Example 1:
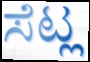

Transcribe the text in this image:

ಸೆಟ್ಲ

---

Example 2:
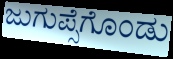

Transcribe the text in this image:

ಜುಗುಪ್ಸೆಗೊಂಡು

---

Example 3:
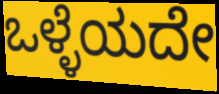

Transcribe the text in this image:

ಒಳ್ಳೆಯದೇ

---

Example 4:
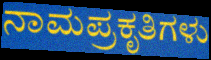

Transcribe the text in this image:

ನಾಮಪ್ರಕೃತಿಗಳು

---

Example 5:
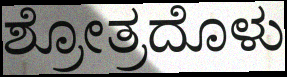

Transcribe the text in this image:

ಶ್ರೋತ್ರದೊಳು